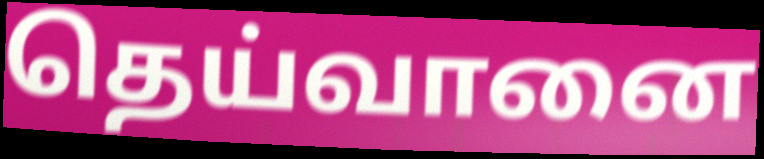
தெய்வானை